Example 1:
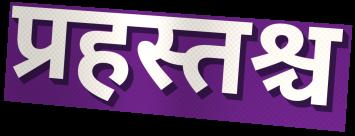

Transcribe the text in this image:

प्रहस्तश्च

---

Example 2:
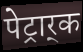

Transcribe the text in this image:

पेट्रार्क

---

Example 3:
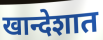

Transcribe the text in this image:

खान्देशात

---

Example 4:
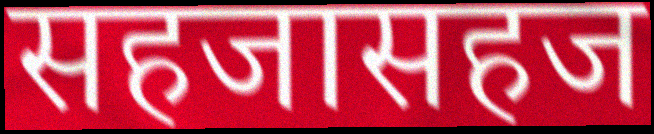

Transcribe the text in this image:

सहजासहज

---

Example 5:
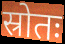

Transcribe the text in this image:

स्रोतः